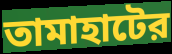
তামাহাটের